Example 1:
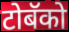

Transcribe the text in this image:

टोबॅको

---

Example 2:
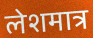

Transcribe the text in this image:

लेशमात्र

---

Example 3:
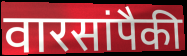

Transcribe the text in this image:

वारसांपैकी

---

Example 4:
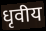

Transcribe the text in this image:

धृवीय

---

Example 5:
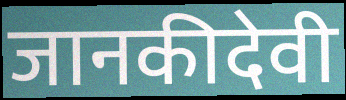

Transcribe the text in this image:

जानकीदेवी